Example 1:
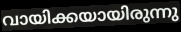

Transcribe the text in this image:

വായിക്കയായിരുന്നു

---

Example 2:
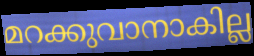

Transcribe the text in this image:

മറക്കുവാനാകില്ല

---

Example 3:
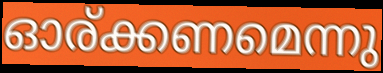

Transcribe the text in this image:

ഓര്ക്കണമെന്നു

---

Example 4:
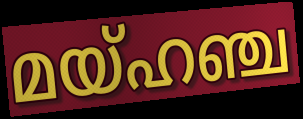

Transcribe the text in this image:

മയ്ഹഞ്ച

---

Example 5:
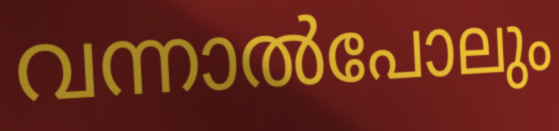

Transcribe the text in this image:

വന്നാൽപോലും